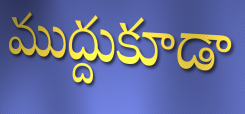
ముద్దుకూడా